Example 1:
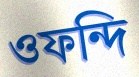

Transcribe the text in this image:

ওফন্দি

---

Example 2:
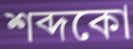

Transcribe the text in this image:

শব্দকো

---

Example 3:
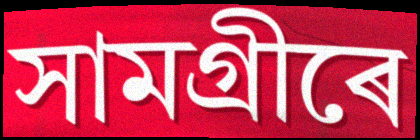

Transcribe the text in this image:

সামগ্ৰীৰে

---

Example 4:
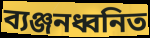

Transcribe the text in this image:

ব্যঞ্জনধ্বনিত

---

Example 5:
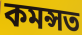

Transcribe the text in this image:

কমন্সত